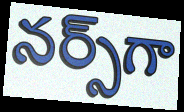
నర్స్‌గా